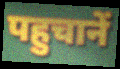
पहुचानें